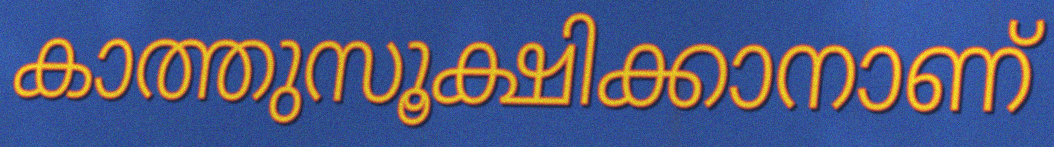
കാത്തുസൂക്ഷിക്കാനാണ്